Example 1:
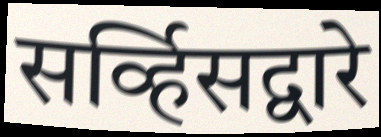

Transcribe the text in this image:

सर्व्हिसद्वारे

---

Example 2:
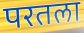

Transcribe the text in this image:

परतला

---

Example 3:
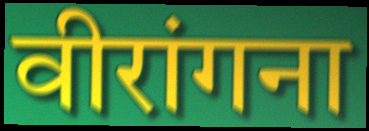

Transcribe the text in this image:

वीरांगना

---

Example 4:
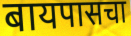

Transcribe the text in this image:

बायपासचा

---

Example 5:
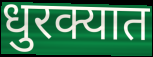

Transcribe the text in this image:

धुरक्यात